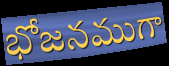
భోజనముగా